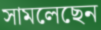
সামলেছেন